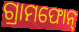
ଗ୍ରାମଫୋନ୍